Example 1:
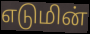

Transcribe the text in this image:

எடுமின்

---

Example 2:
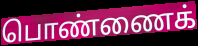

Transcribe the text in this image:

பொண்ணைக்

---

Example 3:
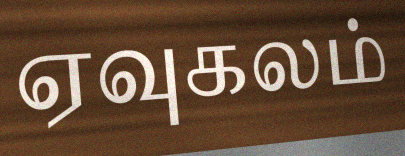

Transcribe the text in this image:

ஏவுகலம்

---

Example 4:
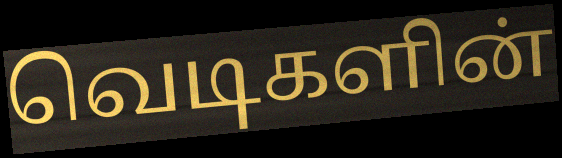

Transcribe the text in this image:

வெடிகளின்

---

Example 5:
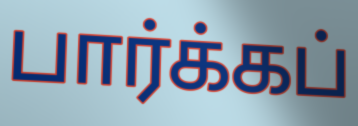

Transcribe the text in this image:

பார்க்கப்